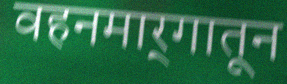
वहनमार्गातून